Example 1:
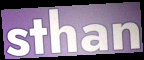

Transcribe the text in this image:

sthan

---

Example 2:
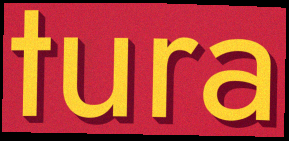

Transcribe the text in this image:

tura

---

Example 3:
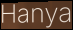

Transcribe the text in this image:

Hanya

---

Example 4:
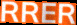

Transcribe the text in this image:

RRER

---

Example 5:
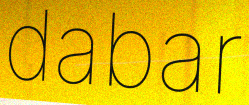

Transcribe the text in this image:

dabar